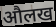
औलख